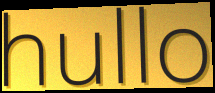
hullo